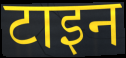
टाइन